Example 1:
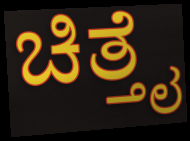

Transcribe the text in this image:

ಚಿತ್ತೈ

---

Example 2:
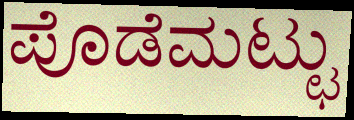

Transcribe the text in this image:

ಪೊಡೆಮಟ್ಟು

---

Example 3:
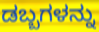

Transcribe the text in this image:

ಡಬ್ಬಗಳನ್ನು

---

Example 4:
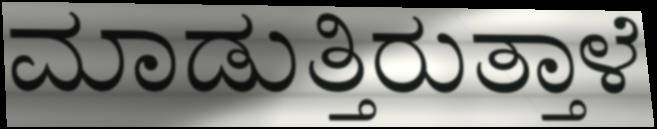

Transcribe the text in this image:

ಮಾಡುತ್ತಿರುತ್ತಾಳೆ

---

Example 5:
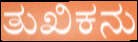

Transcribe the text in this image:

ತುಖಿಕನು